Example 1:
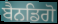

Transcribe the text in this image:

ਬੈਨਡਿਗੋ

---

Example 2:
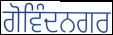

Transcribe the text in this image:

ਗੋਵਿੰਦਨਗਰ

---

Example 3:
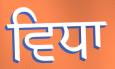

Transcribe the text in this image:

ਵਿਧਾ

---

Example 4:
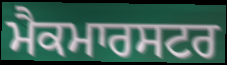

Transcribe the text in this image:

ਮੈਕਮਾਰਸਟਰ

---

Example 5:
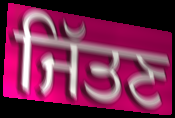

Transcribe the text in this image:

ਜਿੱਤਣ